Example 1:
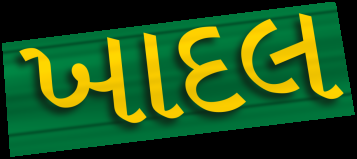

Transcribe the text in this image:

ખાદલ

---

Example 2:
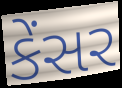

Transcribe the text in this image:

કેંસર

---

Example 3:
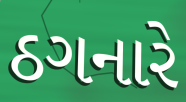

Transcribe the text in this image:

ઠગનારે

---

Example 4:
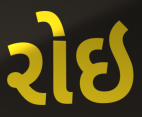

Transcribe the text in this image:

રોઇ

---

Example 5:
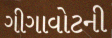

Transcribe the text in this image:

ગીગાવોટની